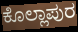
ಕೊಲ್ಲಾಪುರ